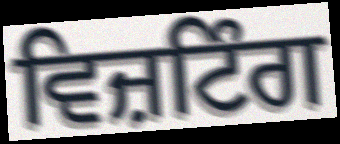
ਵਿਜ਼ਟਿੰਗ